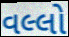
વલ્લો